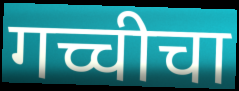
गच्चीचा